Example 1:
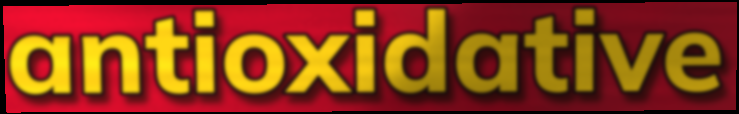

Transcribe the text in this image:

antioxidative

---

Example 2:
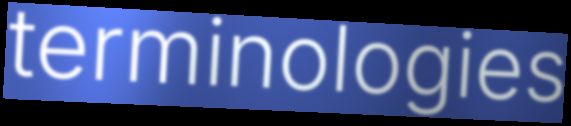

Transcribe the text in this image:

terminologies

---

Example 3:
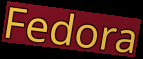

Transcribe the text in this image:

Fedora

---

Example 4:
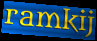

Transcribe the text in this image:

ramkij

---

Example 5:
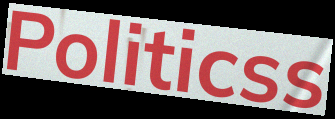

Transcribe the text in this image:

Politicss